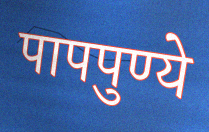
पापपुण्ये